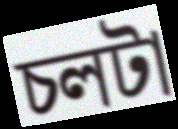
চলটা